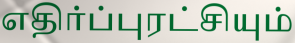
எதிர்ப்புரட்சியும்